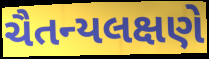
ચૈતન્યલક્ષણે